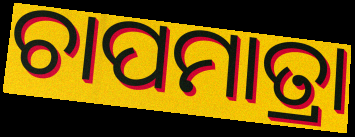
ଚାପମାତ୍ରା